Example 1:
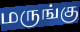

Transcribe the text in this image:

மருங்கு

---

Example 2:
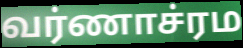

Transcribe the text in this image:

வர்ணாச்ரம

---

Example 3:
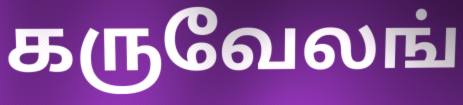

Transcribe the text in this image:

கருவேலங்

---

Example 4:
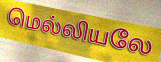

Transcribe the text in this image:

மெல்லியலே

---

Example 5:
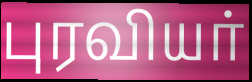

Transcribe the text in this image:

புரவியர்